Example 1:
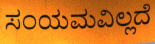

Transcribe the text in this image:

ಸಂಯಮವಿಲ್ಲದೆ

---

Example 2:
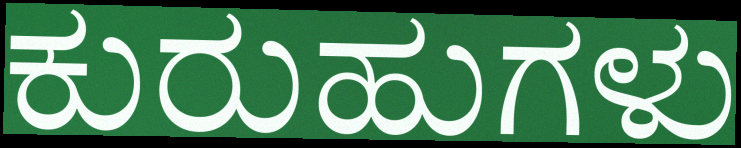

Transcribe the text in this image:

ಕುರುಹುಗಳು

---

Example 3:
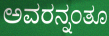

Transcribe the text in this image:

ಅವರನ್ನಂತೂ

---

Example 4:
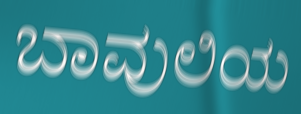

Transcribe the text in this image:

ಬಾವುಲಿಯ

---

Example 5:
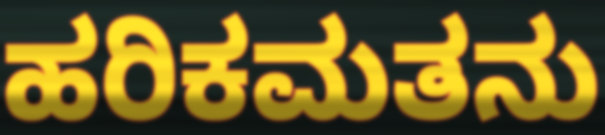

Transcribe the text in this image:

ಹರಿಕಮತನು